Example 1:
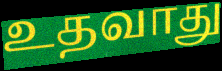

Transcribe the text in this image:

உதவாது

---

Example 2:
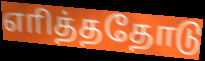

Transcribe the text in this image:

எரித்ததோடு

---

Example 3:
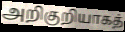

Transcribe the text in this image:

அறிகுறியாகத்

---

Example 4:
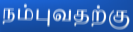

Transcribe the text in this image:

நம்புவதற்கு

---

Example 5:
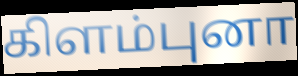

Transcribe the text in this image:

கிளம்புனா